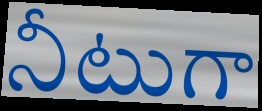
నీటుగా